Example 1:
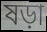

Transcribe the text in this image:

ষড়া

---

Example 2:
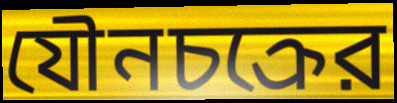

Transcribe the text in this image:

যৌনচক্রের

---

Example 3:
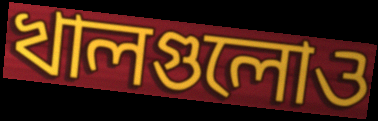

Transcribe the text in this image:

খালগুলোও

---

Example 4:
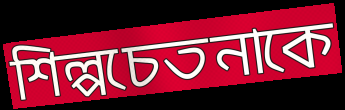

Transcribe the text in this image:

শিল্পচেতনাকে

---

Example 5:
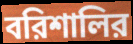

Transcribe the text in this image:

বরিশালির